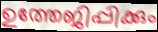
ഉത്തേജിപ്പിക്കും